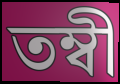
তম্বী